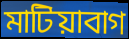
মাটিয়াবাগ